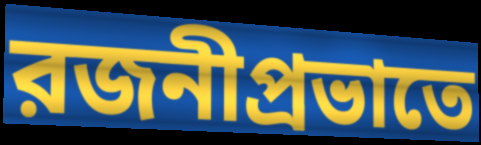
রজনীপ্রভাতে